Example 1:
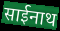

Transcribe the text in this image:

साईनाथ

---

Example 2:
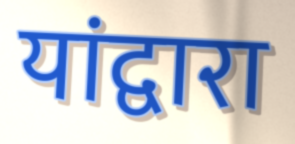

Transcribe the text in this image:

यांद्वारा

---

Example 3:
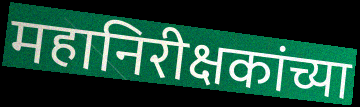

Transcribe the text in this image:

महानिरीक्षकांच्या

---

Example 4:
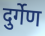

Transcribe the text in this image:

दुर्गेण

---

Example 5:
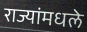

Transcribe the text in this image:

राज्यांमधले